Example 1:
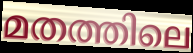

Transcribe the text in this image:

മതത്തിലെ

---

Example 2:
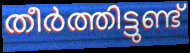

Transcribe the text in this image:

തീർത്തിട്ടുണ്ട്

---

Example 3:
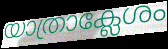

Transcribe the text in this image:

യാത്രാക്ലേശം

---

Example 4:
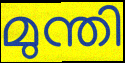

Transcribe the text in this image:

മുന്തി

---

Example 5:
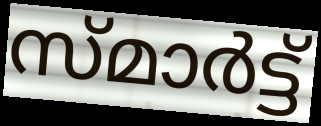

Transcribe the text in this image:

സ്മാർട്ട്